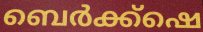
ബെർക്ക്ഷെ